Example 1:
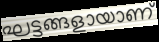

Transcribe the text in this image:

ഘട്ടങ്ങളായാണ്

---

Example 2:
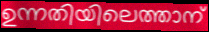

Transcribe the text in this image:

ഉന്നതിയിലെത്താന്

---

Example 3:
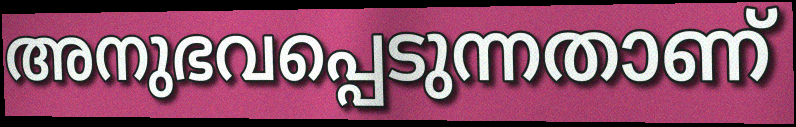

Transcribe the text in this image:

അനുഭവപ്പെടുന്നതാണ്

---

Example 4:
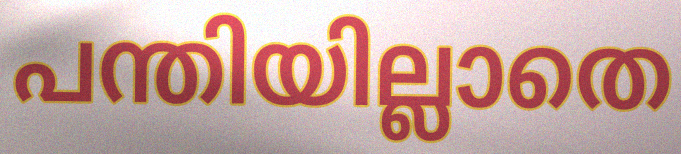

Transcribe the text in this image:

പന്തിയില്ലാതെ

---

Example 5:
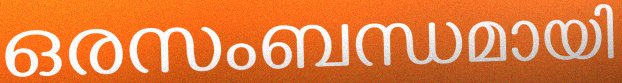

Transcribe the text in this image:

ഒരസംബന്ധമായി